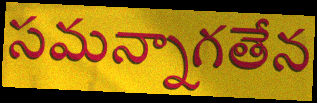
సమన్నాగతేన